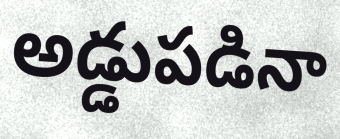
అడ్డుపడినా